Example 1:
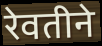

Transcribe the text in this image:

रेवतीने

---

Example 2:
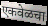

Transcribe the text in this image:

एकवेळचा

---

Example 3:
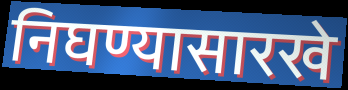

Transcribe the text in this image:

निघण्यासारखे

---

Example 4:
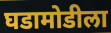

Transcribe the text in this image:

घडामोडीला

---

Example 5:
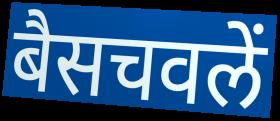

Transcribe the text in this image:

बैसचवलें